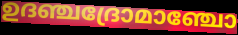
ഉദഞ്ചദ്രോമാഞ്ചോ